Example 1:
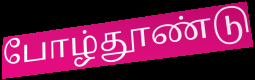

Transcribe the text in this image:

போழ்தூண்டு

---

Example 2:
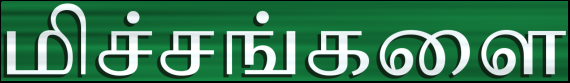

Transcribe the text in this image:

மிச்சங்களை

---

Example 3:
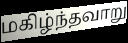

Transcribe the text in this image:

மகிழ்ந்தவாறு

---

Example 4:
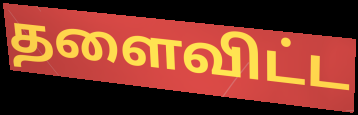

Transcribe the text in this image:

தளைவிட்ட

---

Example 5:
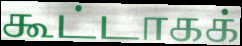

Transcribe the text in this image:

கூட்டாகக்